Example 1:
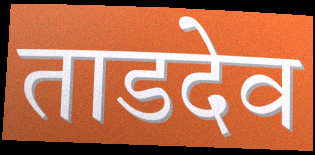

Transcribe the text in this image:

ताडदेव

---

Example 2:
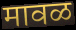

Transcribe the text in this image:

मावळ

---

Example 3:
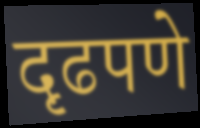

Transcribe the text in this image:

दृढपणे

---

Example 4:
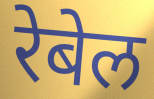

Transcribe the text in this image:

रेबेल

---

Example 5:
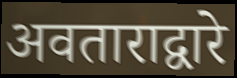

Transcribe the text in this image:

अवताराद्वारे